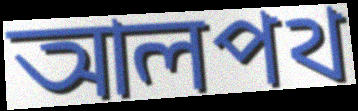
আলপথ